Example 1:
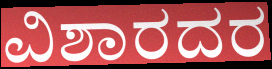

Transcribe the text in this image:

ವಿಶಾರದರ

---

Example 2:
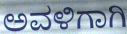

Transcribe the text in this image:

ಅವಳಿಗಾಗಿ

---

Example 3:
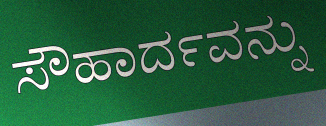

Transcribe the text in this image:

ಸೌಹಾರ್ದವನ್ನು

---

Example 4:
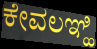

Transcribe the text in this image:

ಕೇವಲಞ್ಹಿ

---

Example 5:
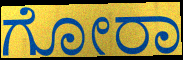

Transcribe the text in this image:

ಗೋರಾ